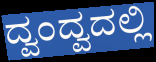
ದ್ವಂದ್ವದಲ್ಲಿ